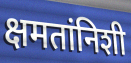
क्षमतांनिशी